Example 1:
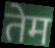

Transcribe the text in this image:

तेम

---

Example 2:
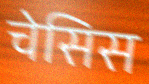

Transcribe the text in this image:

चेसिस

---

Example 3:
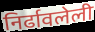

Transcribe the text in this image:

निर्ढावलेली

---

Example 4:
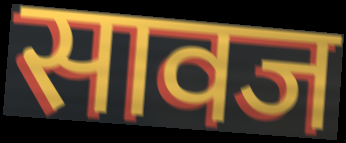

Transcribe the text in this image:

सावज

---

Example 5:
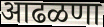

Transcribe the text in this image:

आढळणा